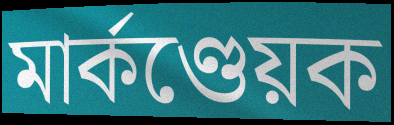
মাৰ্কণ্ডেয়ক